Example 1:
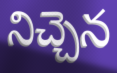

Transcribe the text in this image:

నిచ్చెన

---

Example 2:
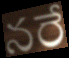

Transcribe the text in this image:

నరే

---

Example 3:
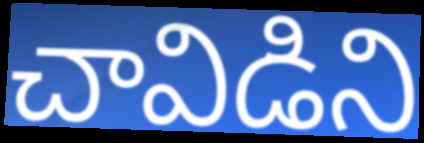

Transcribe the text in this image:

చావిడిని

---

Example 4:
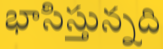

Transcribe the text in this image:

భాసిస్తున్నది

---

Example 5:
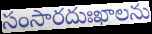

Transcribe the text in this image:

సంసారదుఃఖాలను